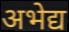
अभेद्य